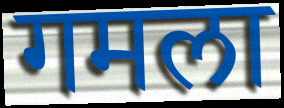
गमला